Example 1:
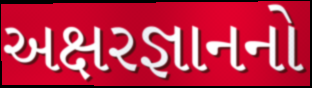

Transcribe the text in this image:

અક્ષરજ્ઞાનનો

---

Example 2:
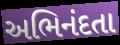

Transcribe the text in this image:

અભિનંદતા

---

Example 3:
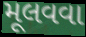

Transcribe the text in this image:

મૂલવવા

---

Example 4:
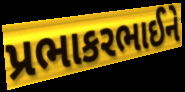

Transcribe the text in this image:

પ્રભાકરભાઈને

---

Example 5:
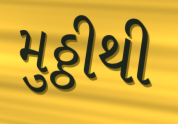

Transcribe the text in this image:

મુઠ્ઠીથી